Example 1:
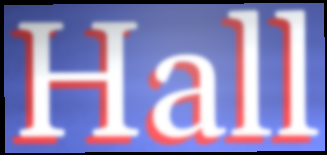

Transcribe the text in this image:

Hall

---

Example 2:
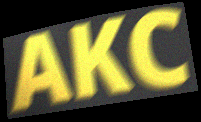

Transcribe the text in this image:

AKC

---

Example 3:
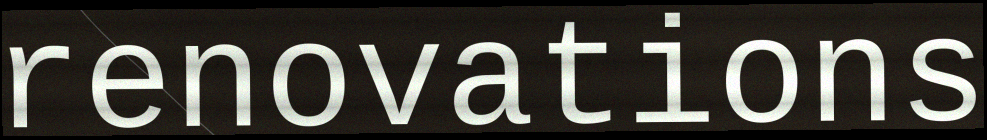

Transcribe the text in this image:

renovations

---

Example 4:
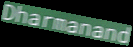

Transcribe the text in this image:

Dharmanand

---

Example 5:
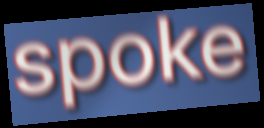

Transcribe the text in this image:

spoke